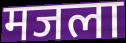
मजला